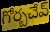
గోర్బచేవ్